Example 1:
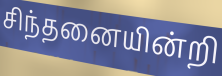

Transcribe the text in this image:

சிந்தனையின்றி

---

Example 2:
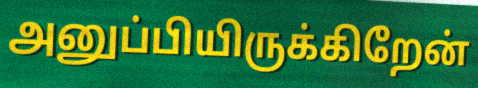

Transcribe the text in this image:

அனுப்பியிருக்கிறேன்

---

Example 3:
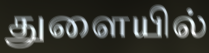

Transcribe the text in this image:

துளையில்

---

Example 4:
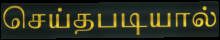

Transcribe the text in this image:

செய்தபடியால்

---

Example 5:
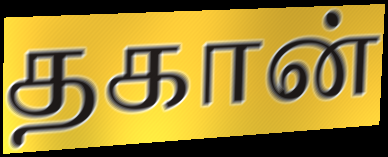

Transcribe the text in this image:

தகான்